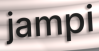
jampi